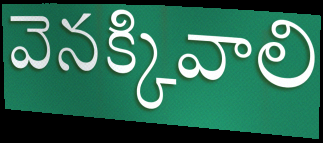
వెనక్కివాలి